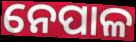
ନେପାଳ